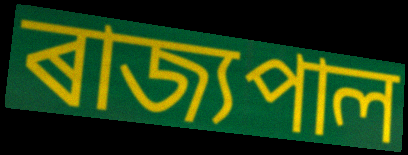
ৰাজ্যপাল